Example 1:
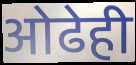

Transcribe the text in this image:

ओढेही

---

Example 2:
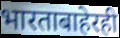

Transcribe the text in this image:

भारताबाहेरही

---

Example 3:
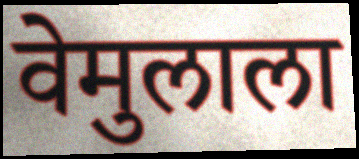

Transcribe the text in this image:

वेमुलाला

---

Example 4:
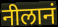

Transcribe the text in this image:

नीलानं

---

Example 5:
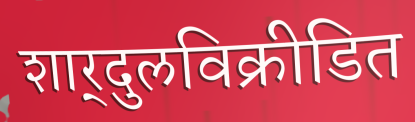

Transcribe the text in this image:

शार्दुलविक्रीडित